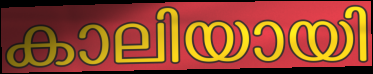
കാലിയായി